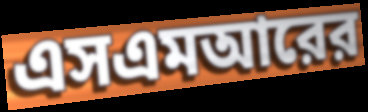
এসএমআরের